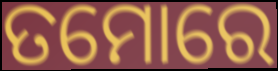
ତମୋରେ